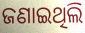
ଜଣାଇଥିଲି